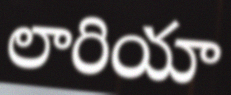
లారియా